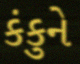
કંકુને